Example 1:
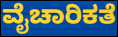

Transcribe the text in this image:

ವೈಚಾರಿಕತೆ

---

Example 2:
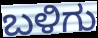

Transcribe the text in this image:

ಬಳಿಗು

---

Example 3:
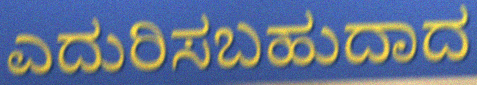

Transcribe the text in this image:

ಎದುರಿಸಬಹುದಾದ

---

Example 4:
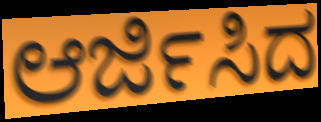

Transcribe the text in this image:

ಆರ್ಜಿಸಿದ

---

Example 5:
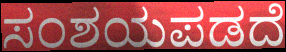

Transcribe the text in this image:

ಸಂಶಯಪಡದೆ